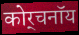
कोर्चनॉय